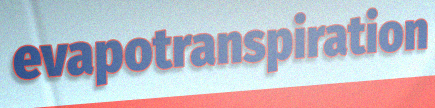
evapotranspiration